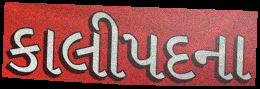
કાલીપદના